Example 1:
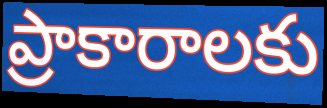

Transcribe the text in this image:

ప్రాకారాలకు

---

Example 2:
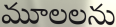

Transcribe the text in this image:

మూలలను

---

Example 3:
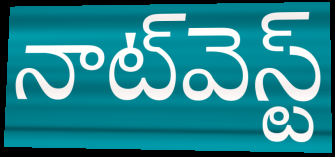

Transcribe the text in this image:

నాట్‌వెస్ట్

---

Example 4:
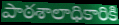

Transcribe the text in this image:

పాఠశాలాధికారికి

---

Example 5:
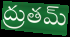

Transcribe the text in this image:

ద్రుతమ్